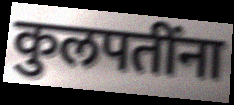
कुलपतींना